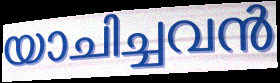
യാചിച്ചവൻ